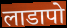
लाडापो